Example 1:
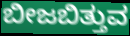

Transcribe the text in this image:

ಬೀಜಬಿತ್ತುವ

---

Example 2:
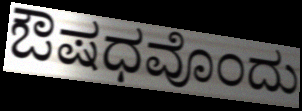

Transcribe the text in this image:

ಔಷಧವೊಂದು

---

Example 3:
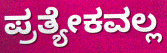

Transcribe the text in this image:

ಪ್ರತ್ಯೇಕವಲ್ಲ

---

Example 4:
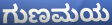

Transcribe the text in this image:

ಗುಣಮಯ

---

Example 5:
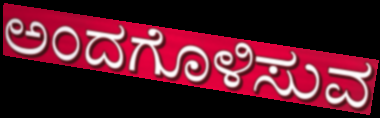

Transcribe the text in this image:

ಅಂದಗೊಳಿಸುವ